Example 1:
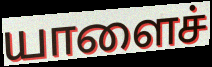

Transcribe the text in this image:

யாளைச்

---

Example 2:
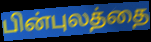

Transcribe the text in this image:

பின்புலத்தை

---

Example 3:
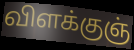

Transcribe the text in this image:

விளக்குஞ்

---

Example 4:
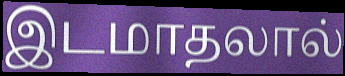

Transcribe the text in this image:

இடமாதலால்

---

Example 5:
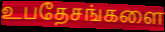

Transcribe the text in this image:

உபதேசங்களை